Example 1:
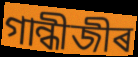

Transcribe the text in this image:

গান্ধীজীৰ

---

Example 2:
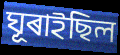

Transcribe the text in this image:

ঘূৰাইছিল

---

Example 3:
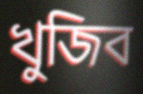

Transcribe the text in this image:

খুজিব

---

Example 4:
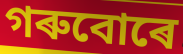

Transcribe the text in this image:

গৰুবোৰে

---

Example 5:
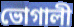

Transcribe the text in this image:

ভোগালী